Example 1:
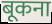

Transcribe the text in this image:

बूकना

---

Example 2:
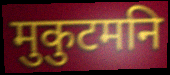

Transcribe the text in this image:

मुकुटमनि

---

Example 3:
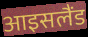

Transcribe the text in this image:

आइसलैंड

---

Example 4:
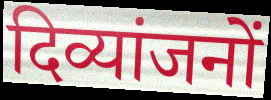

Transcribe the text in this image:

दिव्यांजनों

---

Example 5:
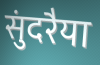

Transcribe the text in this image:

सुंदरैया